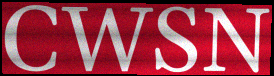
CWSN